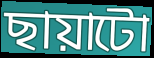
ছায়াটো